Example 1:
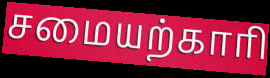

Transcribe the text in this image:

சமையற்காரி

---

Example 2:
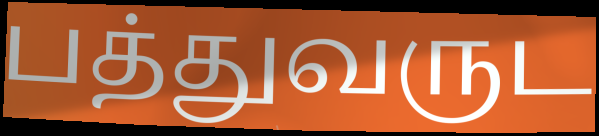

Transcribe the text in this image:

பத்துவருட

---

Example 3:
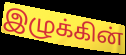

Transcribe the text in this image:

இழுக்கின்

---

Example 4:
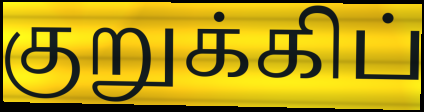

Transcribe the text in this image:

குறுக்கிப்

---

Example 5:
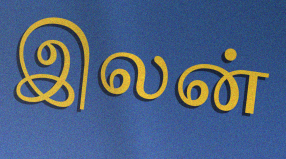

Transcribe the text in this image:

இலன்